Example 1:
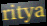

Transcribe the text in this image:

ritya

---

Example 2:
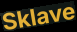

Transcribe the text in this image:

Sklave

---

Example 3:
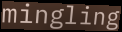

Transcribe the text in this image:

mingling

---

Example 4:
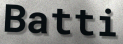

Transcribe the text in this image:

Batti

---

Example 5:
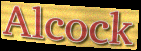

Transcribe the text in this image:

Alcock